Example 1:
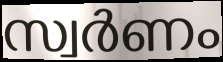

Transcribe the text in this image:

സ്വർണം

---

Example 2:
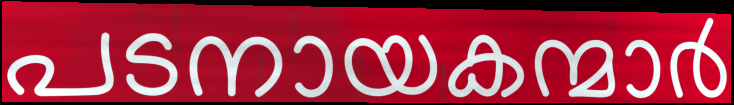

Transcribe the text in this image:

പടനായകന്മാർ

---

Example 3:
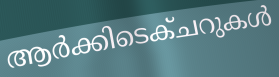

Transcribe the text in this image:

ആർക്കിടെക്ചറുകൾ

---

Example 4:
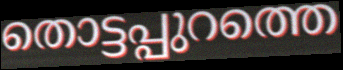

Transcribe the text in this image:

തൊട്ടപ്പുറത്തെ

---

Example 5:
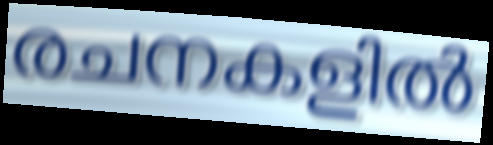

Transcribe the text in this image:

രചനകളിൽ